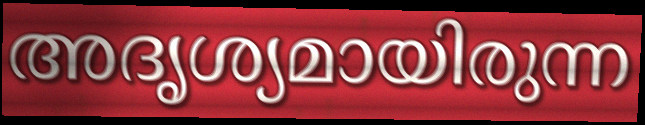
അദൃശ്യമായിരുന്ന